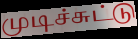
முடிச்சுட்டு